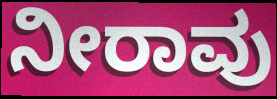
ನೀರಾವು